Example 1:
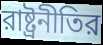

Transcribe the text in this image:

রাষ্ট্রনীতির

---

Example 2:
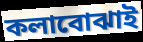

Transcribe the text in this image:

কলাবোঝাই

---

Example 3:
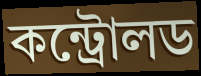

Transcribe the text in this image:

কন্ট্রোলড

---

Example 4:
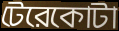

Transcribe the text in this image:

টেরেকোটা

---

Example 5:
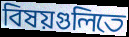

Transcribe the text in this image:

বিষয়গুলিতে